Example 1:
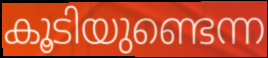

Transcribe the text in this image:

കൂടിയുണ്ടെന്ന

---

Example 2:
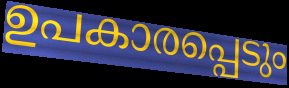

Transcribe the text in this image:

ഉപകാരപ്പെടും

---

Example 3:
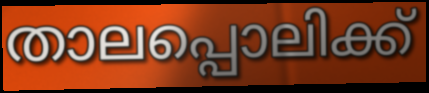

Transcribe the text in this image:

താലപ്പൊലിക്ക്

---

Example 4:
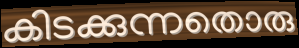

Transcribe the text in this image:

കിടക്കുന്നതൊരു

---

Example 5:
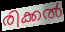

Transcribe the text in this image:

രിക്കൽ